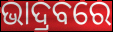
ଭାଦ୍ରବରେ